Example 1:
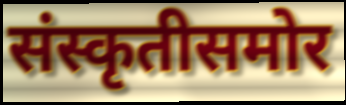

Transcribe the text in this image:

संस्कृतीसमोर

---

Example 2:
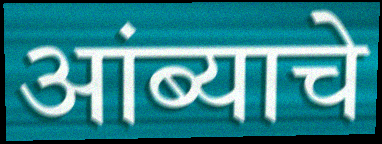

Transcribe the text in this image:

आंब्याचे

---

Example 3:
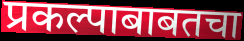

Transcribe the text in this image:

प्रकल्पाबाबतचा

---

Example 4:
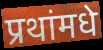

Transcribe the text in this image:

प्रथांमधे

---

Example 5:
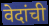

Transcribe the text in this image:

वेदांची